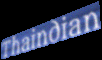
Thaindian